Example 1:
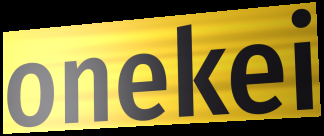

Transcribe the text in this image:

onekei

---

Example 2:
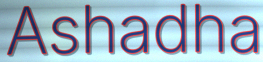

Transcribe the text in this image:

Ashadha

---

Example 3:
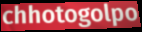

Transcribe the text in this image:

chhotogolpo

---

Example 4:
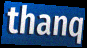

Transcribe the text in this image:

thanq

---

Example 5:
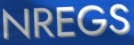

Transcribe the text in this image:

NREGS